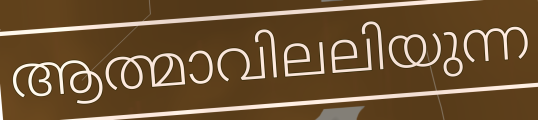
ആത്മാവിലലിയുന്ന